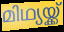
മിഥ്യയ്ക്ക്